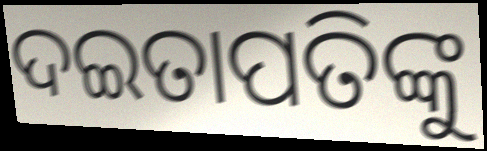
ଦଇତାପତିଙ୍କୁ